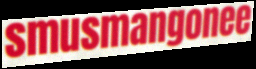
smusmangonee